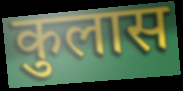
कुलास